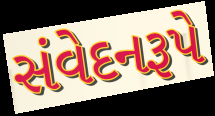
સંવેદનરૂપે